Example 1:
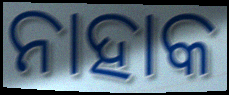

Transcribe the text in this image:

ନାହାକ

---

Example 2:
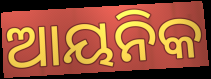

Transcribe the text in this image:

ଆୟନିକ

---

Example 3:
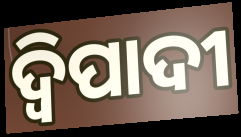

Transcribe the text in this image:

ଦ୍ୱିପାଦୀ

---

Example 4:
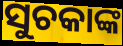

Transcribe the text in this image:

ସୁଚକାଙ୍କ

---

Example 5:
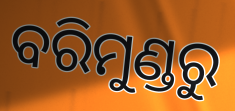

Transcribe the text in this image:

ବରିମୁଣ୍ଡରୁ